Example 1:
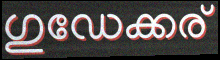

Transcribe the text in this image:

ഗുഡേക്കര്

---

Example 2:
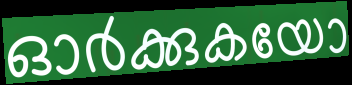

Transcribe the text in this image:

ഓർക്കുകയോ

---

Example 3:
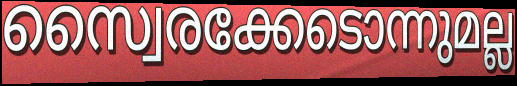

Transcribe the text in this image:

സ്വൈരക്കേടൊന്നുമല്ല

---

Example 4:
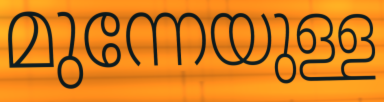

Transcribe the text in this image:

മുന്നേയുള്ള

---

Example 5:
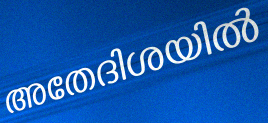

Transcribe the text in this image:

അതേദിശയിൽ